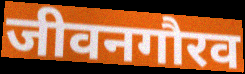
जीवनगौरव